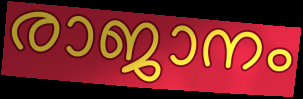
രാജാനം